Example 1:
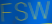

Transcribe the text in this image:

FSW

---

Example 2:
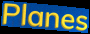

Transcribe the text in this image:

Planes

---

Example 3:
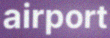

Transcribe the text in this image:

airport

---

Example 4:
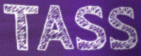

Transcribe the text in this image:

TASS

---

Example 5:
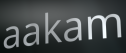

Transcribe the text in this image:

aakam